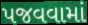
પજવવામાં